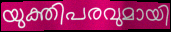
യുക്തിപരവുമായി